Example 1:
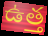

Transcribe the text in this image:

ఉత్త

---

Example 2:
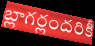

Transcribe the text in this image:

బ్లాగర్లందరికీ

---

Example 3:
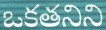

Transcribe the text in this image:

ఒకతనిని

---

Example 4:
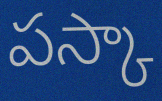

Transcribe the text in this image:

పస్కా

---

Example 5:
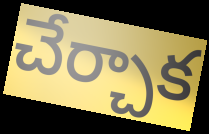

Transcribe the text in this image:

చేర్చాక